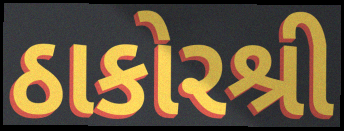
ઠાકોરશ્રી